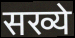
सख्ये